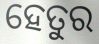
ହେତୁର